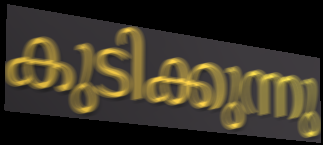
കുടിക്കുന്നു